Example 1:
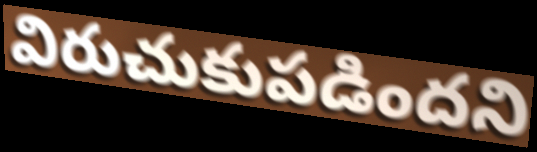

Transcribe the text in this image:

విరుచుకుపడిందని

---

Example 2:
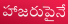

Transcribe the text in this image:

హాజరుపైనే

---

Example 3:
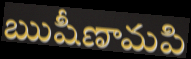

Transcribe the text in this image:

ఋషీణామపి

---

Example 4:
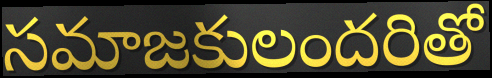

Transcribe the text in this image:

సమాజకులందరితో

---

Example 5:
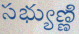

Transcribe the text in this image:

సభ్యుణ్ణి